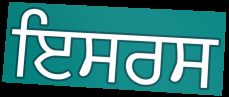
ਇਸਰਸ